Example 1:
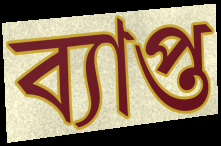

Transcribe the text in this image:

ব্যাপ্ত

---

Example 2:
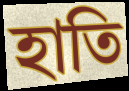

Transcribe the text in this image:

হাতি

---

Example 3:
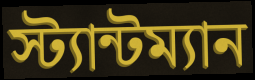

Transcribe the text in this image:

স্ট্যান্টম্যান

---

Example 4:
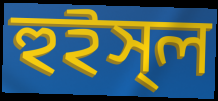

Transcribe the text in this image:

হুইস্‌ল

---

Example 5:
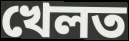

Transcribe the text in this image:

খেলত